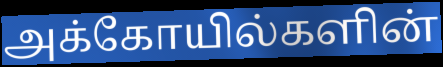
அக்கோயில்களின்